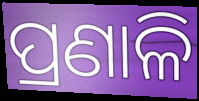
ପ୍ରଣାଳି